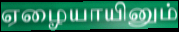
ஏழையாயினும்